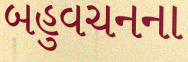
બહુવચનના